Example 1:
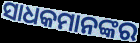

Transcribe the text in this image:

ସାଧକମାନଙ୍କର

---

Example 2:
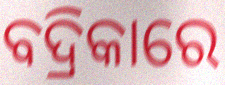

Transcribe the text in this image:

ବଦ୍ରିକାରେ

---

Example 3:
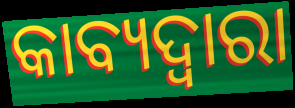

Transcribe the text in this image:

କାବ୍ୟଦ୍ୱାରା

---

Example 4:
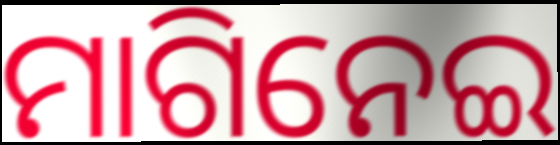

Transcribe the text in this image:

ମାଗିନେଇ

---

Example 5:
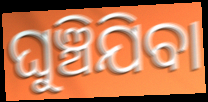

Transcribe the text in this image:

ଘୁଞ୍ଚିଯିବା